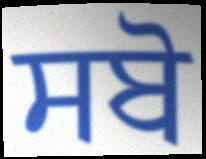
ਸਬੋ